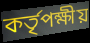
কর্তৃপক্ষীয়